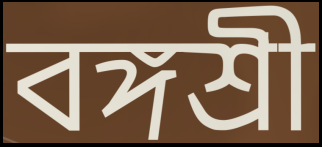
বঙ্গশ্রী